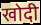
खोदी